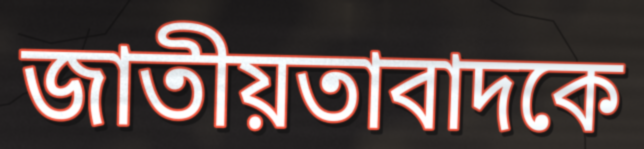
জাতীয়তাবাদকে